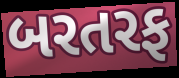
બરતરફ